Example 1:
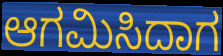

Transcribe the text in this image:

ಆಗಮಿಸಿದಾಗ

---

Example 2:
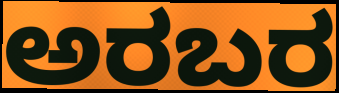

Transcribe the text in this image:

ಅರಬರ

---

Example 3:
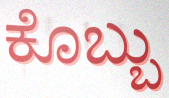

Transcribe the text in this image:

ಕೊಬ್ಬು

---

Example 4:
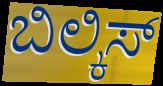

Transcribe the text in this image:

ಬಿಲ್ಕಿಸ್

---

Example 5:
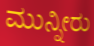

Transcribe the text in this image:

ಮುನ್ನೀರು